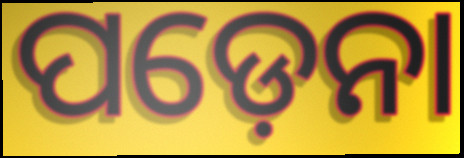
ପଡ଼େନା